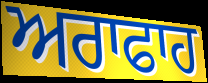
ਅਰਾਫਾਹ